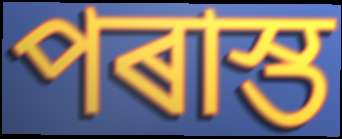
পৰাস্ত